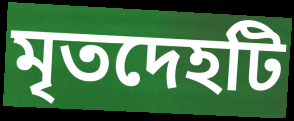
মৃতদেহটি